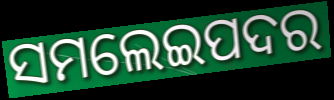
ସମଲେଇପଦର